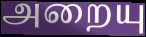
அறையு